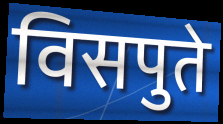
विसपुते